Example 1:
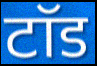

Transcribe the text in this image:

टॉड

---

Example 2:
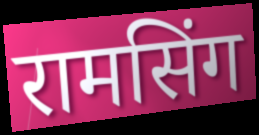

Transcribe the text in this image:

रामसिंग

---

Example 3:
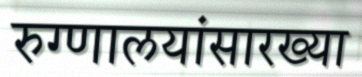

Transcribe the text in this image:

रुग्णालयांसारख्या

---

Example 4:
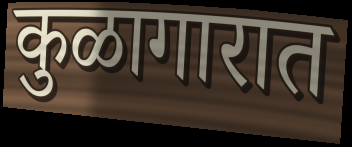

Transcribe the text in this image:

कुळागारात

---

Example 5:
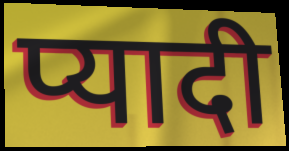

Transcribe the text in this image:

प्यादी